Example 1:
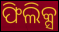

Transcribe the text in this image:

ଫିଲିକ୍ସ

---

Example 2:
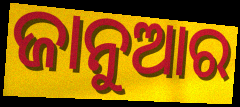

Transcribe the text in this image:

ଜାନୁଆର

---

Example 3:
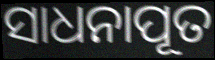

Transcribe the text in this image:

ସାଧନାପୂତ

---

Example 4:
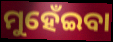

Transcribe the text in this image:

ମୁହେଁଇବା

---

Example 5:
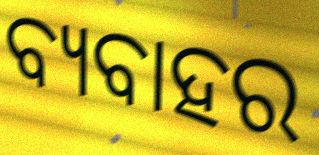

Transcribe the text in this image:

ବ୍ୟବାହର